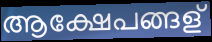
ആക്ഷേപങ്ങള്